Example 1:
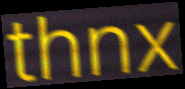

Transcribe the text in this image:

thnx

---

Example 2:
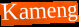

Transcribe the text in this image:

Kameng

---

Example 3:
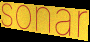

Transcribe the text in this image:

sonar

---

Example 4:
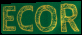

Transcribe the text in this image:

ECOR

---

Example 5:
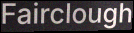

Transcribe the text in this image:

Fairclough